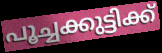
പൂച്ചക്കുട്ടിക്ക്